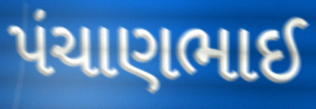
પંચાણભાઈ